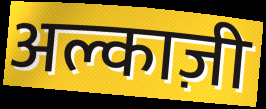
अल्काज़ी